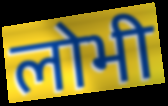
लोभी